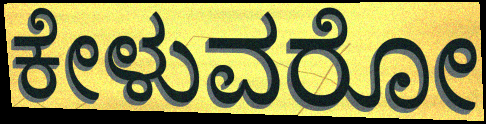
ಕೇಳುವರೋ